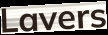
Lavers